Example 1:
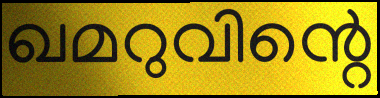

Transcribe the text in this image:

ഖമറുവിന്റെ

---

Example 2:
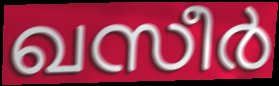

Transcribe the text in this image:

ഖസീർ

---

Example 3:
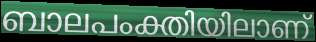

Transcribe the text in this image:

ബാലപംക്തിയിലാണ്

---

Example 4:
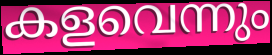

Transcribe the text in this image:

കളവെന്നും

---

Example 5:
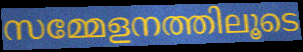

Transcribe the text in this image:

സമ്മേളനത്തിലൂടെ